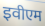
इवीएम